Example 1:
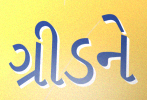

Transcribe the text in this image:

ગ્રીડને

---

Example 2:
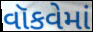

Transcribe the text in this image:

વૉકવેમાં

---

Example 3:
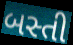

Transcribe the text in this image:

બસ્તી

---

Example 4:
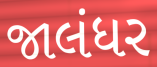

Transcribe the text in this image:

જાલંધર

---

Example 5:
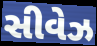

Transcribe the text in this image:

સીવેઝ